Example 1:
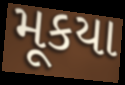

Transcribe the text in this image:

મૂકયા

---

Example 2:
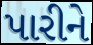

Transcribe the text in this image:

પારીને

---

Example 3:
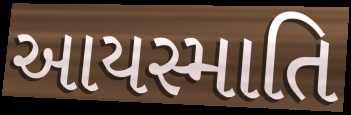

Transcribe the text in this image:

આયસ્માતિ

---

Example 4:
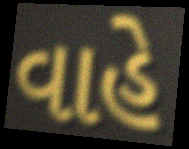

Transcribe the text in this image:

વાહે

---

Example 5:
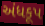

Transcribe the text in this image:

અંધકૂપ